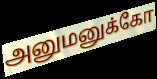
அனுமனுக்கோ